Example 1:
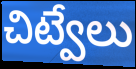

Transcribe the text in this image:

చిట్వేలు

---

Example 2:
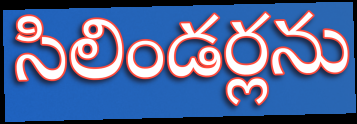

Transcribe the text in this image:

సిలిండర్లను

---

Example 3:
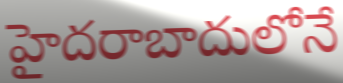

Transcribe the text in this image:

హైదరాబాదులోనే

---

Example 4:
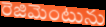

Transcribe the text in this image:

రెజిమెంటును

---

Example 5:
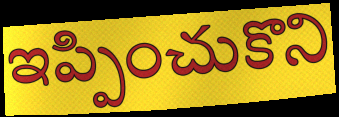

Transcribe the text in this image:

ఇప్పించుకొని